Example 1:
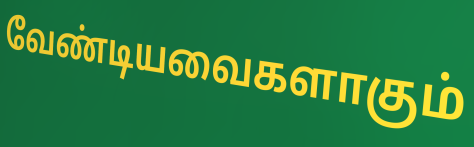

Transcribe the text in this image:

வேண்டியவைகளாகும்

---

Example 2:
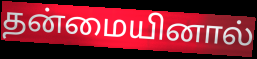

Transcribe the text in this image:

தன்மையினால்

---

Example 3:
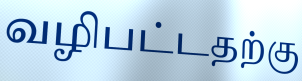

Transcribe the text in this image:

வழிபட்டதற்கு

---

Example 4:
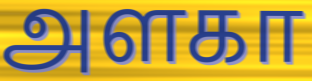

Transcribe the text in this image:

அளகா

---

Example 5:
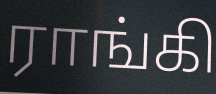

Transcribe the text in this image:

ராங்கி